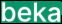
beka